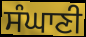
ਸੰਘਾਣੀ